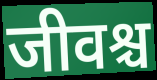
जीवश्च